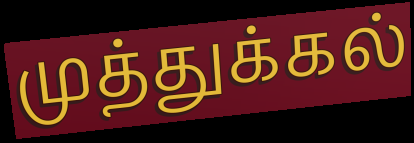
முத்துக்கல்